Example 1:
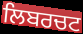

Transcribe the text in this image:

ਲਿਬਰਚਟ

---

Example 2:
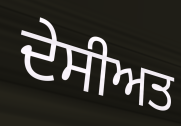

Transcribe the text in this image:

ਦੇਸੀਅਤ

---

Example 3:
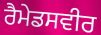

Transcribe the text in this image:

ਰੈਮੇਡਸਵੀਰ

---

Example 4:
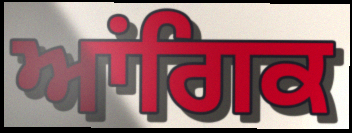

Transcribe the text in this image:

ਆਂਗਿਕ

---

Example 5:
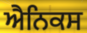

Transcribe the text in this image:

ਐਨਿਕਸ